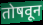
तोषवून